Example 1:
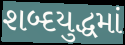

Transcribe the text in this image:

શબ્દયુદ્ધમાં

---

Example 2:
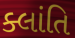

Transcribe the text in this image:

ક્લાંતિ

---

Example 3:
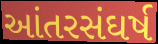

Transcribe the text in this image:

આંતરસંઘર્ષ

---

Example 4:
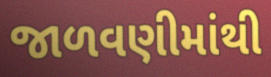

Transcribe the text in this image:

જાળવણીમાંથી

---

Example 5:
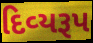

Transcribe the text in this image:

દિવ્‍યરૂપ